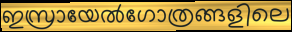
ഇസ്രായേൽഗോത്രങ്ങളിലെ